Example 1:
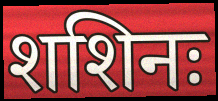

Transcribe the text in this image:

शशिनः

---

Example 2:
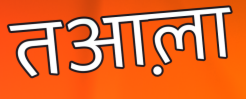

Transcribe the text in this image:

तआ़ला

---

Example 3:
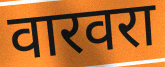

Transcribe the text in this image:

वारवरा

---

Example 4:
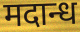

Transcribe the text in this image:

मदान्ध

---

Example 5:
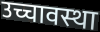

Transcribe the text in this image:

उच्चावस्था